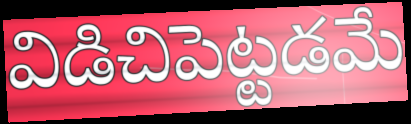
విడిచిపెట్టడమే